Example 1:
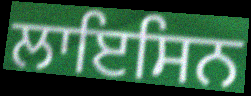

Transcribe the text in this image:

ਲਾਇਸਿਨ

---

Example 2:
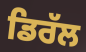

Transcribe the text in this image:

ਡਿਰੱਲ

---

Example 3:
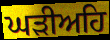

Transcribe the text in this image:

ਘੜੀਅਹਿ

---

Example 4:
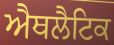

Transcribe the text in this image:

ਐਥਲੈਟਿਕ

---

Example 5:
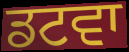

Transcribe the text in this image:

ਡਟਵਾ